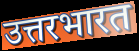
उत्तरभारत